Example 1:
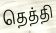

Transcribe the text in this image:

தெத்தி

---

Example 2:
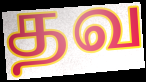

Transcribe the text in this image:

தவ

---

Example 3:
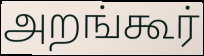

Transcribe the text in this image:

அறங்கூர்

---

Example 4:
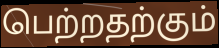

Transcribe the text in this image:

பெற்றதற்கும்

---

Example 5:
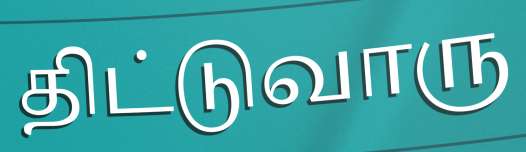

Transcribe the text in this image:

திட்டுவாரு